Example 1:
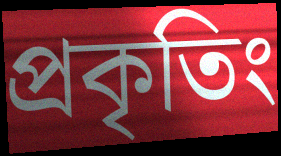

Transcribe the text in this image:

প্রকৃতিং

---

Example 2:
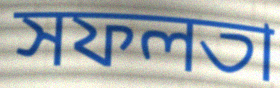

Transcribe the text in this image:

সফলতা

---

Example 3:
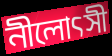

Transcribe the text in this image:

নীলোৎসী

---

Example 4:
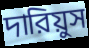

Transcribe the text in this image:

দারিয়ুস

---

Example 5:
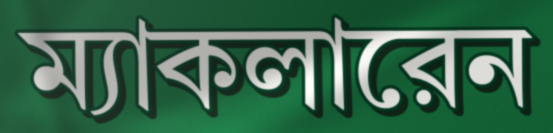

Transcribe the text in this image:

ম্যাকলারেন